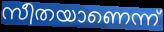
സീതയാണെന്ന്